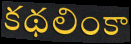
కథలింకా